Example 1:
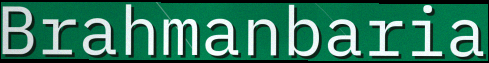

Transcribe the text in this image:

Brahmanbaria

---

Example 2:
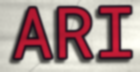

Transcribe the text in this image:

ARI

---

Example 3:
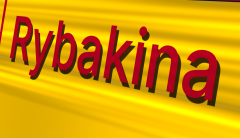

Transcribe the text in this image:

Rybakina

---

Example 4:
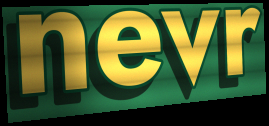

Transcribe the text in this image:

nevr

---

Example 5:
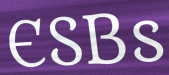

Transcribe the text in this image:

ESBs